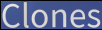
Clones